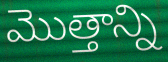
మొత్తాన్ని